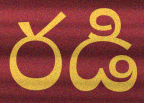
రడి